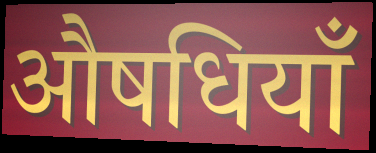
औषधियाँ